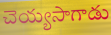
చెయ్యసాగాడు